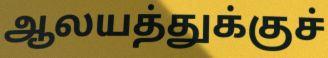
ஆலயத்துக்குச்